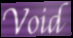
Void